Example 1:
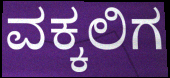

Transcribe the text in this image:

ವಕ್ಕಲಿಗ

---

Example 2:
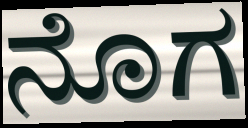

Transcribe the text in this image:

ನೊಗ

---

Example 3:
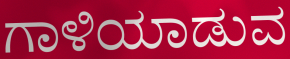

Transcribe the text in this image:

ಗಾಳಿಯಾಡುವ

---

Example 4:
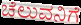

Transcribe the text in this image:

ಚೆಲುವನಿಗೆ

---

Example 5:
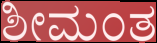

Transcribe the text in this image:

ಶೀಮಂತ